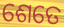
ଶେତେ